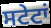
ਸਟੇਟਾਂ